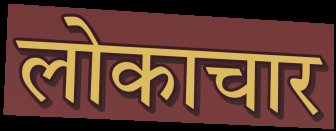
लोकाचार